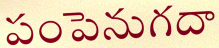
పంపెనుగదా